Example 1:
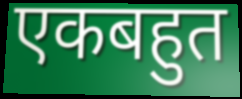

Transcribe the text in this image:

एकबहुत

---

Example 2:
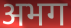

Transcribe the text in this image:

अभग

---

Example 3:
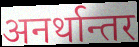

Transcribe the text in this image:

अनर्थान्तर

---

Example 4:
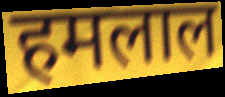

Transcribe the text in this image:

हमलाल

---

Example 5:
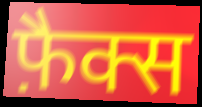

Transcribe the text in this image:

फ़ैक्स